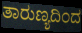
ತಾರುಣ್ಯದಿಂದ